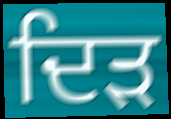
ਦਿੜ